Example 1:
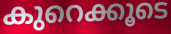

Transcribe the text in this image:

കുറെക്കൂടെ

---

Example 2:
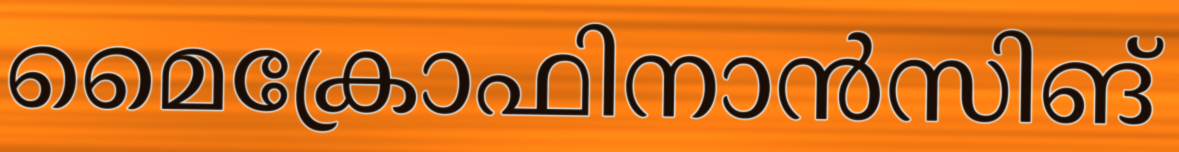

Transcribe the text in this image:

മൈക്രോഫിനാൻസിങ്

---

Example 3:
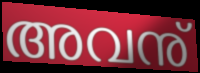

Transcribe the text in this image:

അവനു്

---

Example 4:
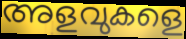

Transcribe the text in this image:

അളവുകളെ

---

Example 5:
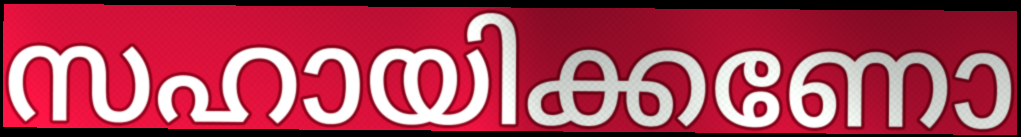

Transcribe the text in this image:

സഹായിക്കണോ